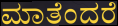
ಮಾತೆಂದರೆ